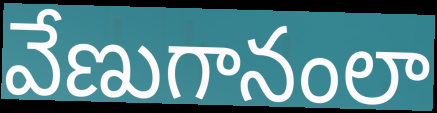
వేణుగానంలా